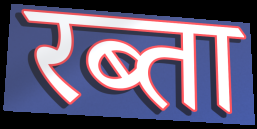
रब्ता